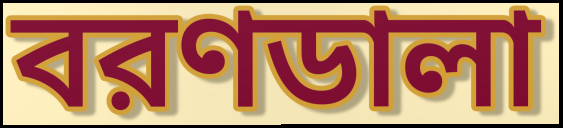
বরণডালা